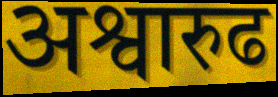
अश्वारुढ